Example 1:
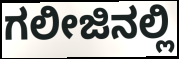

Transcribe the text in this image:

ಗಲೀಜಿನಲ್ಲಿ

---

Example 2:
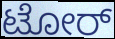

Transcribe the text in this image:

ಟೋರ್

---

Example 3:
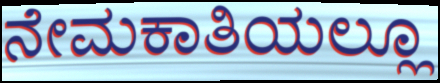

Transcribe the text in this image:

ನೇಮಕಾತಿಯಲ್ಲೂ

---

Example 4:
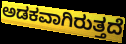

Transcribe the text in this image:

ಅಡಕವಾಗಿರುತ್ತದೆ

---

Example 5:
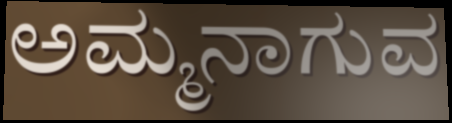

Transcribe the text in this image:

ಅಮ್ಮನಾಗುವ